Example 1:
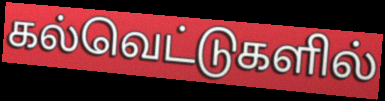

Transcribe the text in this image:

கல்வெட்டுகளில்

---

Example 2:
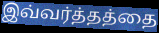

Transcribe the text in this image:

இவ்வர்த்தத்தை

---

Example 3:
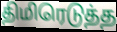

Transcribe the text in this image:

திமிரெடுத்த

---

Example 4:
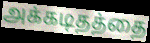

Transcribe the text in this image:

அக்கடிதத்தை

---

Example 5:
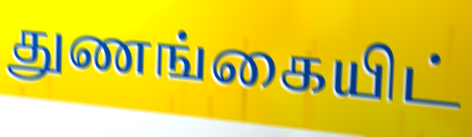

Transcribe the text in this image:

துணங்கையிட்